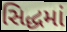
સિદ્ધમાં